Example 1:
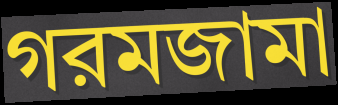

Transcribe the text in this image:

গরমজামা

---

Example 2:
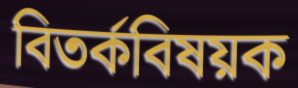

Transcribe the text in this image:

বিতর্কবিষয়ক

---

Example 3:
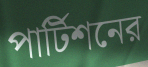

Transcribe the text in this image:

পার্টিশনের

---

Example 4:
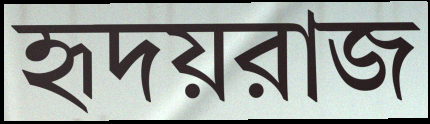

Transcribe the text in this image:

হৃদয়রাজ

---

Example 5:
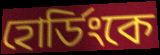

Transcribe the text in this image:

হোর্ডিংকে